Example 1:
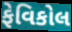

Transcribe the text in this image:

ફેવિકોલ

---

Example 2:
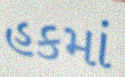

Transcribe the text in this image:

હકમાં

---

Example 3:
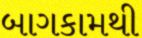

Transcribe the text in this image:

બાગકામથી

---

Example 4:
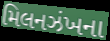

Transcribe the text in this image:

મિલનઝંખના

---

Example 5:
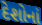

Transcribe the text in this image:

દેશોનાં